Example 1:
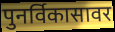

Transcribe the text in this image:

पुनर्विकासावर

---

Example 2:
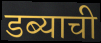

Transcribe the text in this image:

डब्याची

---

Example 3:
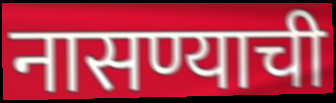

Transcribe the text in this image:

नासण्याची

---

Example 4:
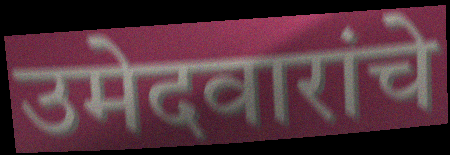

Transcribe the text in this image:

उमेदवारांचे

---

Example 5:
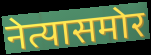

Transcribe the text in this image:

नेत्यासमोर